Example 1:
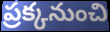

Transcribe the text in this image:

ప్రక్కనుంచి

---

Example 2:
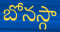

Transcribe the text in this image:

బోనస్గా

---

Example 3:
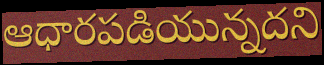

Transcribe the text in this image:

ఆధారపడియున్నదని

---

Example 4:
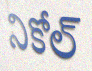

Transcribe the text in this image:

నికోల్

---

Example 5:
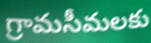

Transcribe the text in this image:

గ్రామసీమలకు